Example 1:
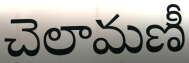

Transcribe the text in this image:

చెలామణీ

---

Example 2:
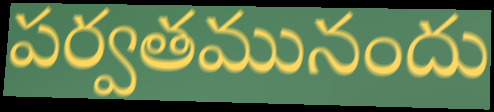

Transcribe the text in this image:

పర్వతమునందు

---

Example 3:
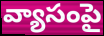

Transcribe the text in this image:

వ్యాసంపై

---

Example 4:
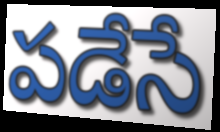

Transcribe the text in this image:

పడేసే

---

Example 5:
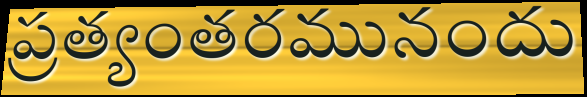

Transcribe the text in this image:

ప్రత్యంతరమునందు